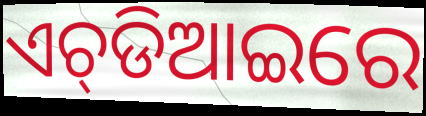
ଏଚ୍‌ଡିଆଇରେ